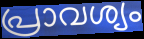
പ്രാവശ്യം